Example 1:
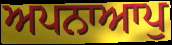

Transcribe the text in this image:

ਅਪਨਾਆਪੁ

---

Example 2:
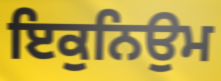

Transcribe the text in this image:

ਇਕੁਨਿਉਮ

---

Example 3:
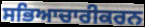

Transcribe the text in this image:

ਸਭਿਆਚਾਰੀਕਰਨ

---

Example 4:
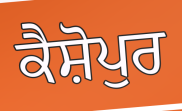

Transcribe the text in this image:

ਕੈਸ਼ੋਪੁਰ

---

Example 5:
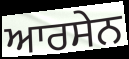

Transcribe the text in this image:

ਆਰਸੇਨ